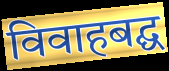
विवाहबद्घ